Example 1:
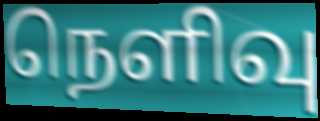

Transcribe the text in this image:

நெளிவு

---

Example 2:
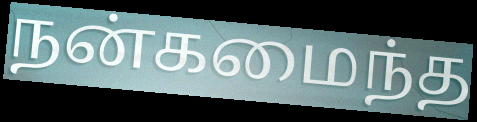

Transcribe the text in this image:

நன்கமைந்த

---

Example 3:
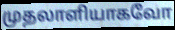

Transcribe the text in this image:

முதலாளியாகவோ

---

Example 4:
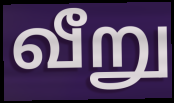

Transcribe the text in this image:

வீறு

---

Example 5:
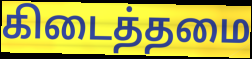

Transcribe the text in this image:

கிடைத்தமை